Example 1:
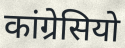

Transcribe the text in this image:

कांग्रेसियो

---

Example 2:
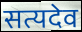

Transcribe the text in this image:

सत्यदेव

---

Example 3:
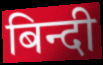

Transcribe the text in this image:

बिन्दी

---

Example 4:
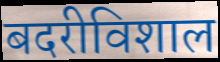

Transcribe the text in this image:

बदरीविशाल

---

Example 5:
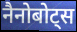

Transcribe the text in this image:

नैनोबोट्स